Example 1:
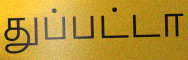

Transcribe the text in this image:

துப்பட்டா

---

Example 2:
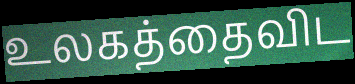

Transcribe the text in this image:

உலகத்தைவிட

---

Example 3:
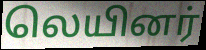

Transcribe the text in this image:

லெயினர்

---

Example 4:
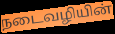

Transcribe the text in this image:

நடைவழியின்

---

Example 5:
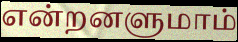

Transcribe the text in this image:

என்றனளுமாம்